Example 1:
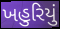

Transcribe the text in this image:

ખહુરિયું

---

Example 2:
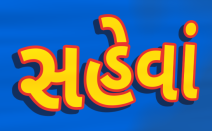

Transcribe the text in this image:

સહેવાં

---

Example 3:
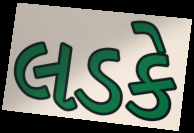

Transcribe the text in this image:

લડકે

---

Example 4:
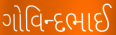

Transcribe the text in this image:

ગોવિન્દભાઈ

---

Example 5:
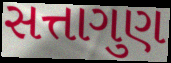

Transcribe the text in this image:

સત્તાગુણ